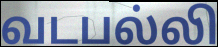
வடபல்லி